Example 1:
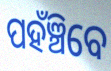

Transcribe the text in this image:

ପହଁଞ୍ଚିବେ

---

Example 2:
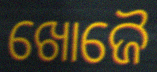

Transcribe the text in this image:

ଖୋଜୈ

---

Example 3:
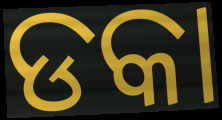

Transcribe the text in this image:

ଡକା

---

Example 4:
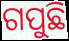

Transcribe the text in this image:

ଗପୁଛି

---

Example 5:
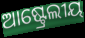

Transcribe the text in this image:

ଆଷ୍ଟ୍ରେଲୀୟ